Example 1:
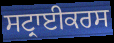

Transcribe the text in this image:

ਸਟ੍ਰਾਈਕਰਸ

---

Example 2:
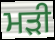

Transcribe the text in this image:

ਮੜੀ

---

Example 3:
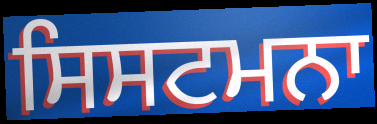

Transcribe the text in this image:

ਸਿਸਟਮਨਾ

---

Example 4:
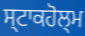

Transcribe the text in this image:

ਸ੍ਟਾਕਹੋਲ੍ਮ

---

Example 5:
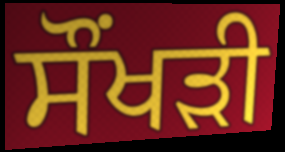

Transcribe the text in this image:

ਸੌਂਖੜੀ